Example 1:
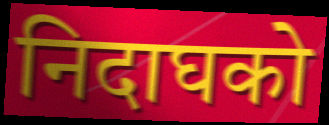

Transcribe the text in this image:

निदाघको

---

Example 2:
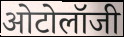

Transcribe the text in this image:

ओटोलॉजी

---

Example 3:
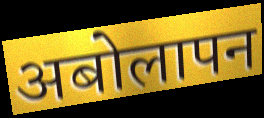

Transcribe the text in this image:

अबोलापन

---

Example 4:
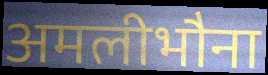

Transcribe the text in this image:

अमलीभौना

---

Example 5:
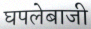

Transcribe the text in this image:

घपलेबाजी